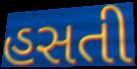
હસતી